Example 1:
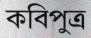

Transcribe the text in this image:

কবিপুত্র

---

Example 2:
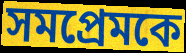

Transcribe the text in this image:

সমপ্রেমকে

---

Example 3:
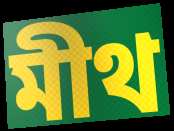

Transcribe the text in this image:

মীথ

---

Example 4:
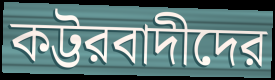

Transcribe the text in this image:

কট্টরবাদীদের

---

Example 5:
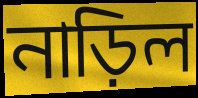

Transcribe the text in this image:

নাড়িল